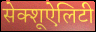
सेक्शूऐलिटी